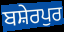
ਬਸ਼ੇਰਪੁਰ